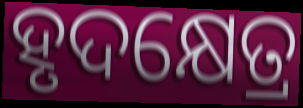
ହୃଦକ୍ଷେତ୍ର